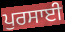
ਪੁਰਸਾਈ